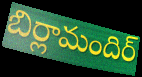
బిర్లామందిర్